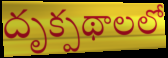
దృక్పథాలలో